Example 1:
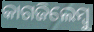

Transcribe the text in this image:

କାଗଜିଲେମ୍ବୁ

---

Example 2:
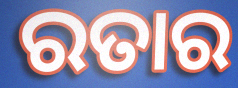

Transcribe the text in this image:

ରତାର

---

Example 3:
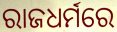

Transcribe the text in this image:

ରାଜଧର୍ମରେ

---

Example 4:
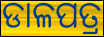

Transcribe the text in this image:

ଡାଳପତ୍ର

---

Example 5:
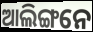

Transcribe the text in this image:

ଆଲିଙ୍ଗନେ